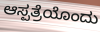
ಆಸ್ಪತ್ರೆಯೊಂದು